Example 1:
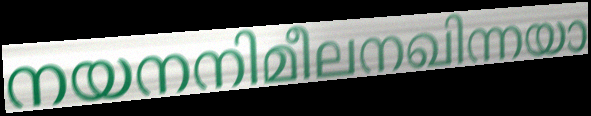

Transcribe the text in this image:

നയനനിമീലനഖിന്നയാ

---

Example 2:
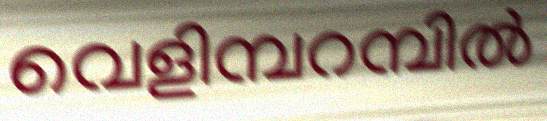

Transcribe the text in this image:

വെളിമ്പറമ്പിൽ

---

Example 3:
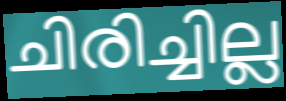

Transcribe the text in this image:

ചിരിച്ചില്ല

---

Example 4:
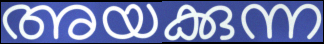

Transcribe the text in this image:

അയക്കുന്ന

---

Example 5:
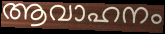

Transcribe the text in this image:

ആവാഹനം